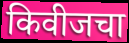
किवीजचा